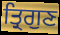
ਤ੍ਰਿਗੁਣ